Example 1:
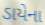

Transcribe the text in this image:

ડાયેના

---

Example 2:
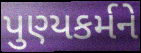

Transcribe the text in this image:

પુણ્યકર્મને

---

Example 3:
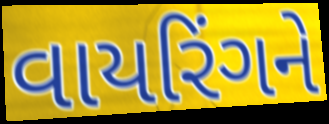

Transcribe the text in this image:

વાયરિંગને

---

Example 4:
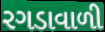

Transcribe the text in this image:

રગડાવાળી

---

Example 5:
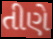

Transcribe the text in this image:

તીણે